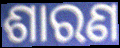
ଶାରଣ